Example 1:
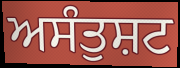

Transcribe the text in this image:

ਅਸੰਤੁਸ਼ਟ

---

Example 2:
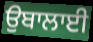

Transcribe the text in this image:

ਉਬਾਲਾਈ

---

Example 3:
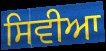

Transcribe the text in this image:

ਸਿਵੀਆ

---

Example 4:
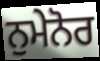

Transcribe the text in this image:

ਨੁਮੇਨੋਰ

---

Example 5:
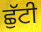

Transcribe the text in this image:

ਛੁੱਟੀ